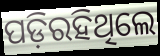
ପଡ଼ିରହିଥିଲେ